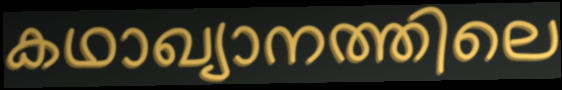
കഥാഖ്യാനത്തിലെ